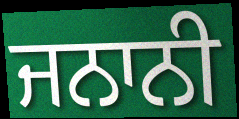
ਜਨਾਨੀ